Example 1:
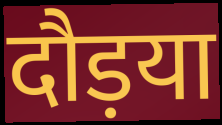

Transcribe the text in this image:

दौड़या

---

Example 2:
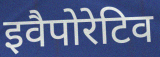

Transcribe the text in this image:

इवैपोरेटिव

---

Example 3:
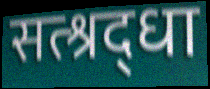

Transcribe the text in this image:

सत्श्रद्धा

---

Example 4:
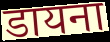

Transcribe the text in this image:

डायना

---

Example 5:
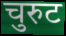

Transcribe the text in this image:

चुरुट